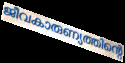
ജീവകാരുണ്യത്തിന്റെ